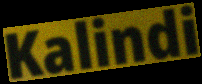
Kalindi